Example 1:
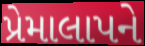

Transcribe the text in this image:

પ્રેમાલાપને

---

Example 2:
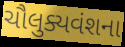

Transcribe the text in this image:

ચૌલુક્યવંશના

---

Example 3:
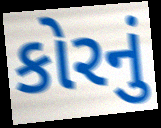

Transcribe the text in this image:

કોરનું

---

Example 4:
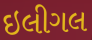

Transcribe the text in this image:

ઇલીગલ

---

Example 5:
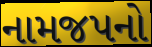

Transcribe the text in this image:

નામજપનો